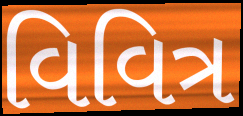
વિવિત્ર